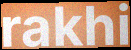
rakhi